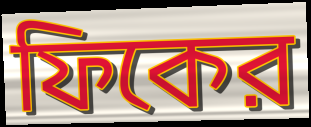
ফিকের